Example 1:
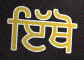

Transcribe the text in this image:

ਇੱਥੋ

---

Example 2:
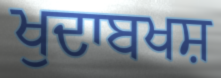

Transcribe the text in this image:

ਖੁਦਾਬਖਸ਼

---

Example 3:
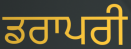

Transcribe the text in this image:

ਡਰਾਪਰੀ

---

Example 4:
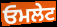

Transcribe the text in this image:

ਓਮਲੇਟ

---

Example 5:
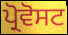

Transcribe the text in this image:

ਪ੍ਰੋਵੋਸਟ